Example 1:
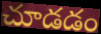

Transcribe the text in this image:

చూడడం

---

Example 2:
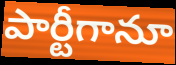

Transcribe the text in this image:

పార్టీగానూ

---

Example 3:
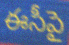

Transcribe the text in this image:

ఈసీపై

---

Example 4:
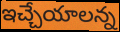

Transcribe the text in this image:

ఇచ్చేయాలన్న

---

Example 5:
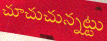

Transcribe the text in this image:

చూచుచున్నట్టు